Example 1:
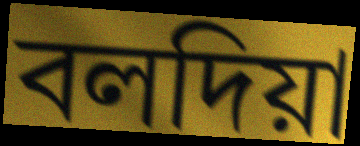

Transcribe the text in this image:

বলদিয়া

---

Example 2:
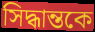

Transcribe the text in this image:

সিদ্ধান্তকে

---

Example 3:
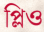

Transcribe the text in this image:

প্লিও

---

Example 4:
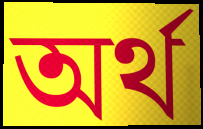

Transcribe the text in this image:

অর্থ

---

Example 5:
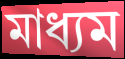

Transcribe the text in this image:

মাধ্যম